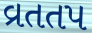
વ્રતતપ